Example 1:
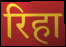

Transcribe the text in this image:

रिहा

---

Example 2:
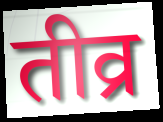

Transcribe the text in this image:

तीव्र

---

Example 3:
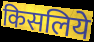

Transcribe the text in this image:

किसलिये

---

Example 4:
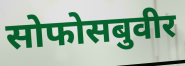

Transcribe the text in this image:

सोफोसबुवीर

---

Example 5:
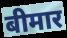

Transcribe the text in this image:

बीमार